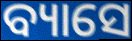
ବ୍ୟାସେ